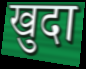
खुदा